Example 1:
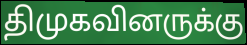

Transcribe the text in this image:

திமுகவினருக்கு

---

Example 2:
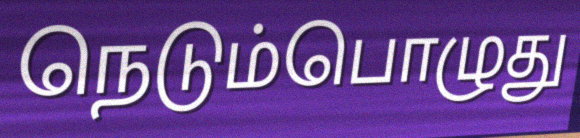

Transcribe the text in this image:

நெடும்பொழுது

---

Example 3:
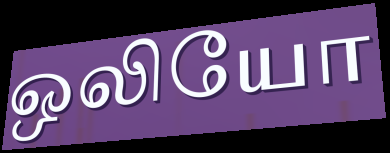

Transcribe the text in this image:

ஒலியோ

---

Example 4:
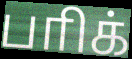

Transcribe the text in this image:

பரிக்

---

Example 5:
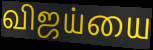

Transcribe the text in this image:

விஜய்யை